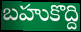
బహుకొద్ది